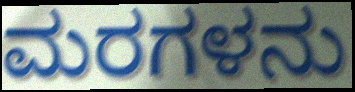
ಮರಗಳನು